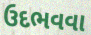
ઉદભવવા